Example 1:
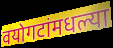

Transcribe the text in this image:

वयोगटांमधल्या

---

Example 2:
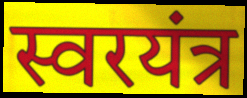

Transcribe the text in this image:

स्वरयंत्र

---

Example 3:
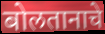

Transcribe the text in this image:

बोलतानाचे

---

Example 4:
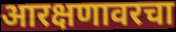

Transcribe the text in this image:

आरक्षणावरचा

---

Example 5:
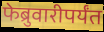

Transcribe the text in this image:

फेब्रुवारीपर्यंत